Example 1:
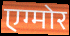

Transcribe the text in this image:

एग्मोर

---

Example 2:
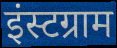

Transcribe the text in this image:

इंस्टग्राम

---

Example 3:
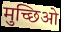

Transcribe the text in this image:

मुच्छिओ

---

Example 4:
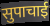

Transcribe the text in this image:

सुपाचाई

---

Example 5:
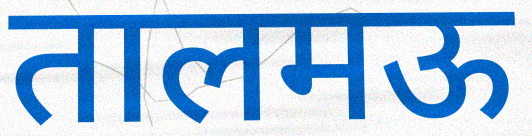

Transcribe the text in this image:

तालमऊ